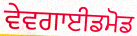
ਵੇਵਗਾਈਡਮੋਡ